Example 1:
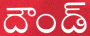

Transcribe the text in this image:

దౌండ్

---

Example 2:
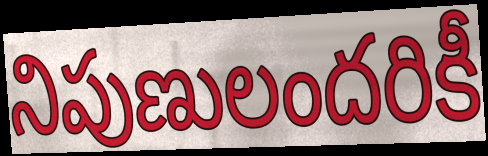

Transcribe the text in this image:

నిపుణులందరికీ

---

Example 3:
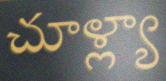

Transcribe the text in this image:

చూళ్ల్యా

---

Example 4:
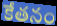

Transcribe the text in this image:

కేతనం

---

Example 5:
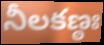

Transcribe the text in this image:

నీలకణ్ఠః